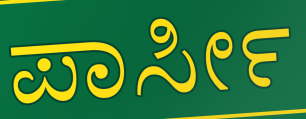
ಪಾರ್ಸೀ